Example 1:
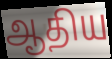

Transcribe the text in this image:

ஆதிய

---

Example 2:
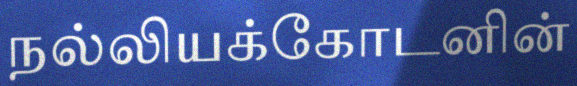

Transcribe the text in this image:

நல்லியக்கோடனின்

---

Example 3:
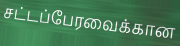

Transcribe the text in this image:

சட்டப்பேரவைக்கான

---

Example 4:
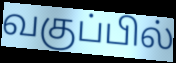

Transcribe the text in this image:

வகுப்பில்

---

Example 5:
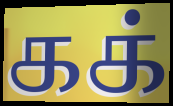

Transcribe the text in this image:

கக்